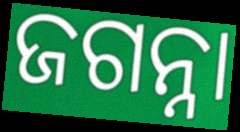
ଜଗନ୍ନା